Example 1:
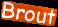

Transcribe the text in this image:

Brout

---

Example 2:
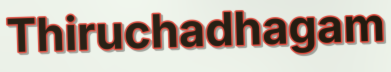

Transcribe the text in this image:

Thiruchadhagam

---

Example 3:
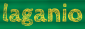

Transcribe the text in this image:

laganio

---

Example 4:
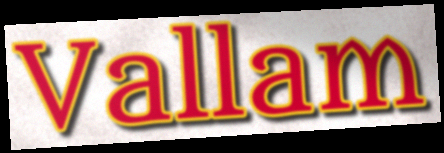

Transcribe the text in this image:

Vallam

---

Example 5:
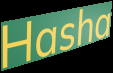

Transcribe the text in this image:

Hasha